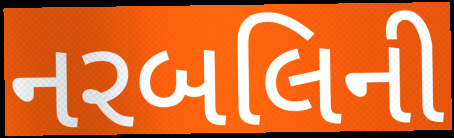
નરબલિની